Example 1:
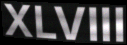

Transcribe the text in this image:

XLVIII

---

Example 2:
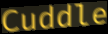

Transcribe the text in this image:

Cuddle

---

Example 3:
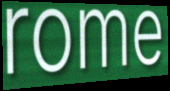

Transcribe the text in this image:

rome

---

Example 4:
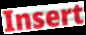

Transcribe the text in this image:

Insert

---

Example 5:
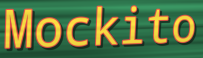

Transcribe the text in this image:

Mockito